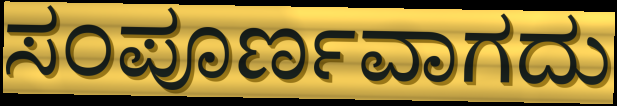
ಸಂಪೂರ್ಣವಾಗದು